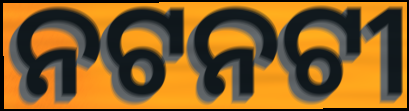
ନଟନଟୀ